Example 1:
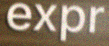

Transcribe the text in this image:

expr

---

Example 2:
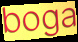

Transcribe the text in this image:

boga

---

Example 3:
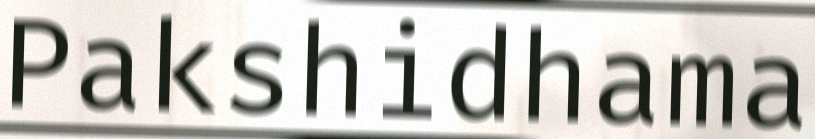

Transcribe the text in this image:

Pakshidhama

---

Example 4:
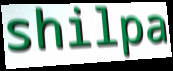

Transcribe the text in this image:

shilpa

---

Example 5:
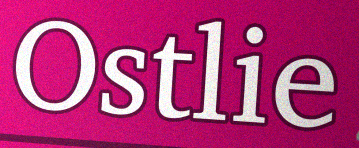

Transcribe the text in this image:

Ostlie